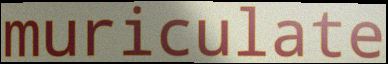
muriculate